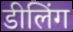
डीलिंग